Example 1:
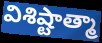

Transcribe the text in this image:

విశిష్టాత్మా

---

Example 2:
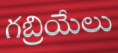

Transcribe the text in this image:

గబ్రియేలు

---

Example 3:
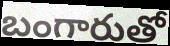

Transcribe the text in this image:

బంగారుతో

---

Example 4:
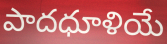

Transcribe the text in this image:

పాదధూళియే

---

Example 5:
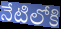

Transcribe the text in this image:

నేటిలోకి